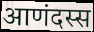
आणंदस्स